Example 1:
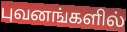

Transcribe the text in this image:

புவனங்களில்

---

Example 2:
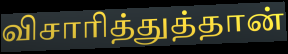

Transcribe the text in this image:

விசாரித்துத்தான்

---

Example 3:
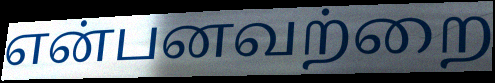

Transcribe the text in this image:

என்பனவற்றை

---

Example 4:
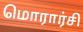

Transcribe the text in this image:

மொரார்சி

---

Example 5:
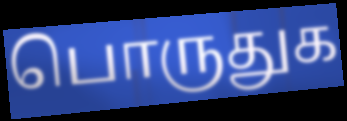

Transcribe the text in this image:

பொருதுக